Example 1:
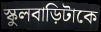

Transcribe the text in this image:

স্কুলবাড়িটাকে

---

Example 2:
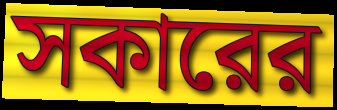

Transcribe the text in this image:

সকারের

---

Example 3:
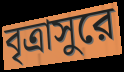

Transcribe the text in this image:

বৃত্রাসুরে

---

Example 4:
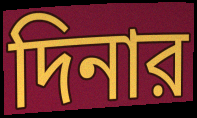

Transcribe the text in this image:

দিনার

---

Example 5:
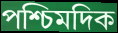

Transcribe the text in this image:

পশ্চিমদিক